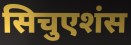
सिचुएशंस